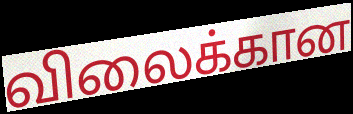
விலைக்கான